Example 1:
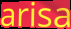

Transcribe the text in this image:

arisa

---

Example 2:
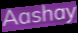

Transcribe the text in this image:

Aashay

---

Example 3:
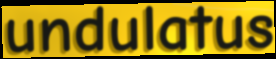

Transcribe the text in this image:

undulatus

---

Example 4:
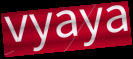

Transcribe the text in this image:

vyaya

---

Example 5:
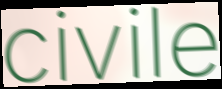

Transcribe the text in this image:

civile